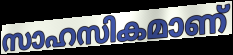
സാഹസികമാണ്